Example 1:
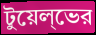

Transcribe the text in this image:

টুয়েল্ভের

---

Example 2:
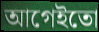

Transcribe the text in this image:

আগেইতো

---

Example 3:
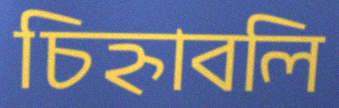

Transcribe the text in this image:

চিহ্নাবলি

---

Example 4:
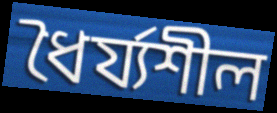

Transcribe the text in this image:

ধৈর্য্যশীল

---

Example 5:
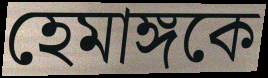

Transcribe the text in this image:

হেমাঙ্গকে